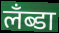
लँब्डा